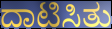
ದಾಟಿಸಿತು